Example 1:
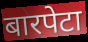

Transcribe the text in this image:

बारपेटा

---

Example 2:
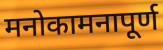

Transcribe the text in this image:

मनोकामनापूर्ण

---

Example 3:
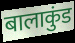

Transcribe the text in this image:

बालाकुंड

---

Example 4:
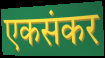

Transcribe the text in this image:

एकसंकर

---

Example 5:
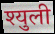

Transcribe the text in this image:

श्युली